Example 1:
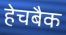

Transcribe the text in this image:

हेचबैक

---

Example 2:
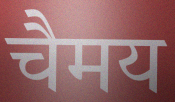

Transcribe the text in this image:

चैमय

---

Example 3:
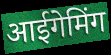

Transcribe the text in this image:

आईगेमिंग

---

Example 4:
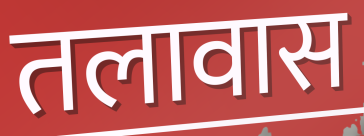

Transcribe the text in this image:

तलावास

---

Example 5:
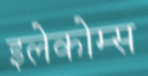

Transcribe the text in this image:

इलेकोम्स